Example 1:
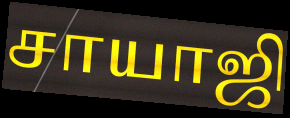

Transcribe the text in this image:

சாயாஜி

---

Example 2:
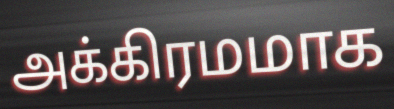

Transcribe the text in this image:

அக்கிரமமாக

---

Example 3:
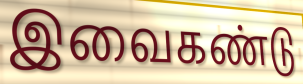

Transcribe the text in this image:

இவைகண்டு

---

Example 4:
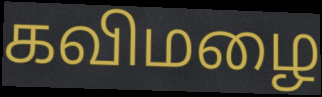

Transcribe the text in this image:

கவிமழை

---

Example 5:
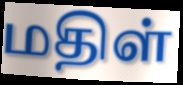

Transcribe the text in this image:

மதிள்